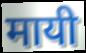
मायी